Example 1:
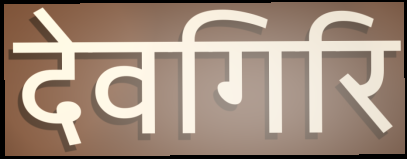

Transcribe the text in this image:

देवगिरि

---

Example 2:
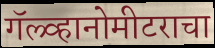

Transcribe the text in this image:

गॅल्व्हानोमीटराचा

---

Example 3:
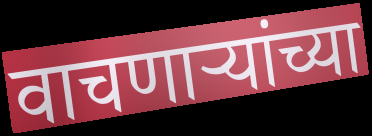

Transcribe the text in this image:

वाचणार्‍यांच्या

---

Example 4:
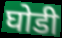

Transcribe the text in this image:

घोडी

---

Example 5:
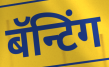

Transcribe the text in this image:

बॅन्टिंग